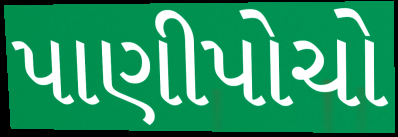
પાણીપોચો